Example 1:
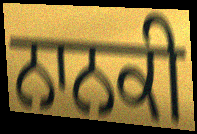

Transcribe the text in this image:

ਨਾਨਕੀ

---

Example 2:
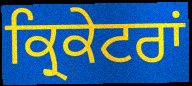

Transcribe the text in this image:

ਕ੍ਰਿਕੇਟਰਾਂ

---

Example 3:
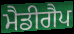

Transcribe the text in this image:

ਮੈਡੀਗੈਪ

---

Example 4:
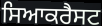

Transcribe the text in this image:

ਸਿਆਕਰੈਸਟ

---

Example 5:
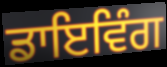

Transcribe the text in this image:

ਡਾਇਵਿੰਗ